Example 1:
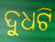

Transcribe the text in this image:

ଦୁଧଟି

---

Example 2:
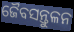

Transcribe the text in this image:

ଜୈବସନ୍ତୁଳନ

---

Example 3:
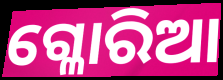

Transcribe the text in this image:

ଗ୍ଳୋରିଆ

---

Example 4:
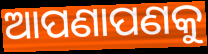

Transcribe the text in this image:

ଆପଣାପଣକୁ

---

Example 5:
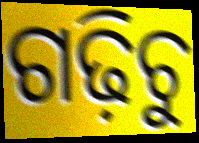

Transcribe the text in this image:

ଗଢ଼ିଚୁ